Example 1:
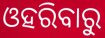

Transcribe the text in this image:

ଓହରିବାରୁ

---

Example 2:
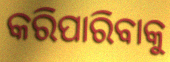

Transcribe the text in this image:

କରିପାରିବାକୁ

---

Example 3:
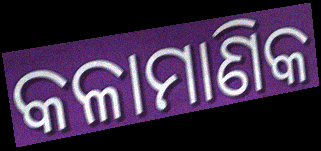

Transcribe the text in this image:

କଳାମାଣିକ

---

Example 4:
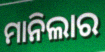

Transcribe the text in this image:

ମାନିଲାର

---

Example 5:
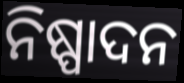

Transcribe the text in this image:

ନିଷ୍ପାଦନ